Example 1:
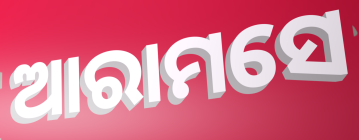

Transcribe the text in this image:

ଆରାମସେ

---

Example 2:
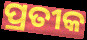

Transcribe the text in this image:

ପ୍ରତୀକ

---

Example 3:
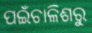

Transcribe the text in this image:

ପଇଁଚାଳିଶରୁ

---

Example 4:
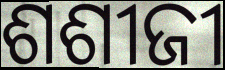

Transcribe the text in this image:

ଶଶୀଜୀ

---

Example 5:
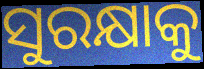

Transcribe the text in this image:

ସୁରକ୍ଷାକୁ